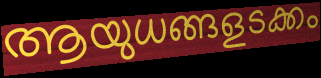
ആയുധങ്ങളടക്കം